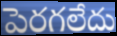
పెరగలేదు